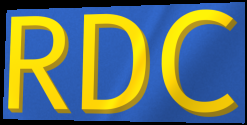
RDC